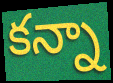
కన్నా